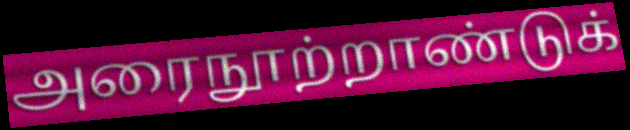
அரைநூற்றாண்டுக்